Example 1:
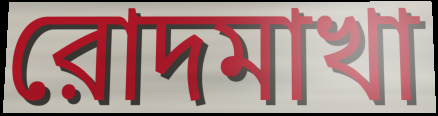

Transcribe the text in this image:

রোদমাখা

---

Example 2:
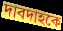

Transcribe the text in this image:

দাবদাহকে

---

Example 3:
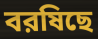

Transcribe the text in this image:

বরষিছে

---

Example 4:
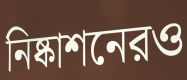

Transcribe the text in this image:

নিষ্কাশনেরও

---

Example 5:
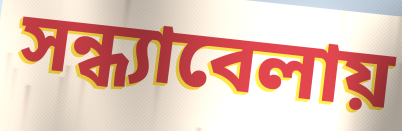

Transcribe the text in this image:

সন্ধ্যাবেলায়